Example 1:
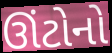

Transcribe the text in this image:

ઊંટોનો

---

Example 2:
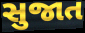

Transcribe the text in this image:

સુજાત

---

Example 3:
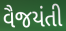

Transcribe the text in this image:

વૈજયંતી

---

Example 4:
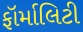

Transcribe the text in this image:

ફૉર્માલિટી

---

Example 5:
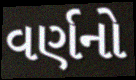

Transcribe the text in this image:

વર્ણનો